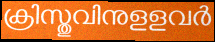
ക്രിസ്തുവിനുളളവർ